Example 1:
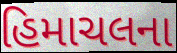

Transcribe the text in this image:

હિમાચલના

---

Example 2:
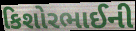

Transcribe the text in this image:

કિશોરભાઈની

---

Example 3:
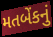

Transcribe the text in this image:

મતબેંકનું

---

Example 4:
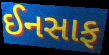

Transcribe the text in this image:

ઈનસાફ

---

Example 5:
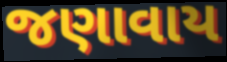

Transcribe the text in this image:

જણાવાય